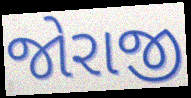
જોરાજી